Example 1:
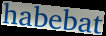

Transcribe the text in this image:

habebat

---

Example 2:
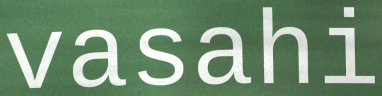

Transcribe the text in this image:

vasahi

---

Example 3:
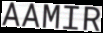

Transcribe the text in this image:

AAMIR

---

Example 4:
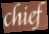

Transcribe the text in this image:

chief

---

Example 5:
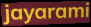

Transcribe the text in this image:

jayarami